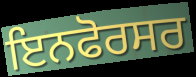
ਇਨਫੋਰਸਰ